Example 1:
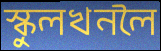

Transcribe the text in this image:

স্কুলখনলৈ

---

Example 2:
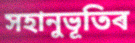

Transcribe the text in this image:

সহানুভূতিৰ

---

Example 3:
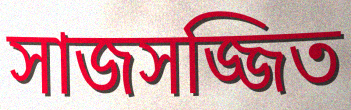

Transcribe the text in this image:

সাজসজ্জিত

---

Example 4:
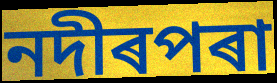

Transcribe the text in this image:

নদীৰপৰা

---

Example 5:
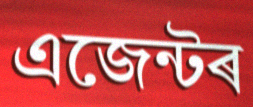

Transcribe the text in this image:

এজেন্টৰ